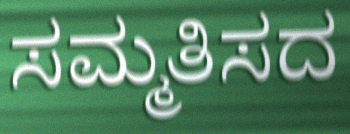
ಸಮ್ಮತಿಸದ